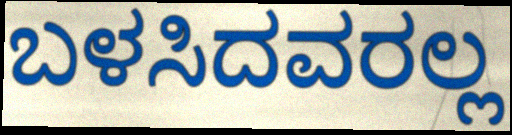
ಬಳಸಿದವರಲ್ಲ